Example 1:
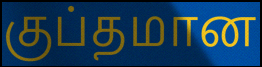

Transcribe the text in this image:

குப்தமான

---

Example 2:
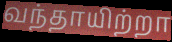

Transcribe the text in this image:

வந்தாயிற்றா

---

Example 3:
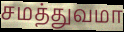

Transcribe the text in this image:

சமத்துவமா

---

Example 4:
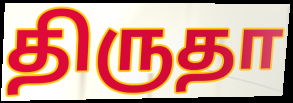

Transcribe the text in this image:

திருதா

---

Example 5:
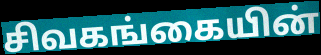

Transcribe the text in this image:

சிவகங்கையின்